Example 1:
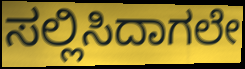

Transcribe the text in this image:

ಸಲ್ಲಿಸಿದಾಗಲೇ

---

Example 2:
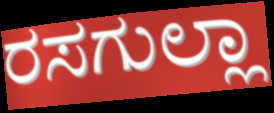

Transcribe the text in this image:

ರಸಗುಲ್ಲಾ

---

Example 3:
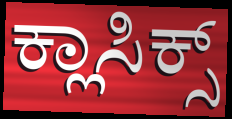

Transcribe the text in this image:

ಕ್ಲಾಸಿಕ್ಸ್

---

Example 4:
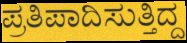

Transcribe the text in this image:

ಪ್ರತಿಪಾದಿಸುತ್ತಿದ್ದ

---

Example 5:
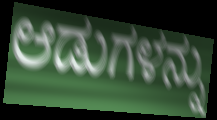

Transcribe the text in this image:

ಆಡುಗಳನ್ನು